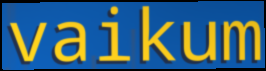
vaikum